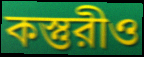
কস্তুরীও